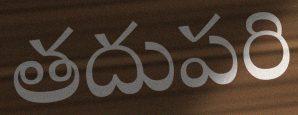
తదుపరి